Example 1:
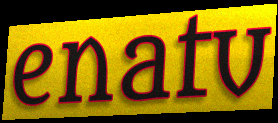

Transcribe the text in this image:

enatu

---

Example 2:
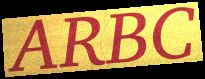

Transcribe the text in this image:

ARBC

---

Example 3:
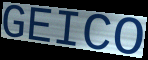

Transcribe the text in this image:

GEICO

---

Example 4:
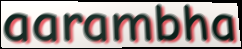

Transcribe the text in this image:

aarambha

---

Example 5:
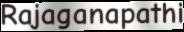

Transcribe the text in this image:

Rajaganapathi